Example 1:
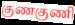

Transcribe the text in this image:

குணகுணி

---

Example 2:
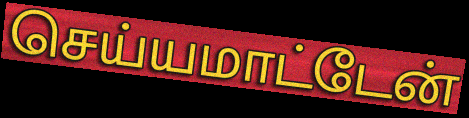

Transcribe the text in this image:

செய்யமாட்டேன்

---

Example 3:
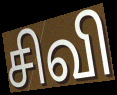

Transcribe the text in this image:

சிவி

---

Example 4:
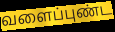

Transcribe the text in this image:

வளைப்புண்ட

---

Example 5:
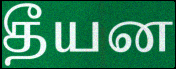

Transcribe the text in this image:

தீயன